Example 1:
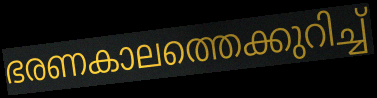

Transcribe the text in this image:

ഭരണകാലത്തെക്കുറിച്ച്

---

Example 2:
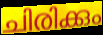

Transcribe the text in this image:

ചിരിക്കും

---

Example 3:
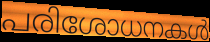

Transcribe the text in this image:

പരിശോധനകൾ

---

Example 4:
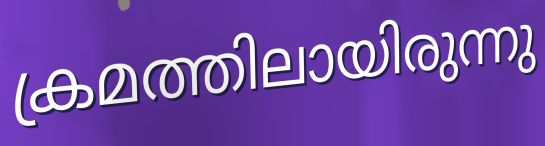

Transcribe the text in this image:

ക്രമത്തിലായിരുന്നു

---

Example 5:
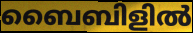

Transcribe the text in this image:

ബൈബിളിൽ